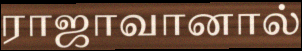
ராஜாவானால்